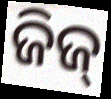
ଜିଜ୍